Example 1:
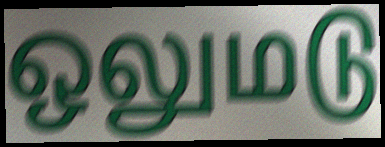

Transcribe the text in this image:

ஒலுமடு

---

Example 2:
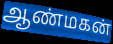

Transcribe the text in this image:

ஆண்மகன்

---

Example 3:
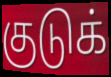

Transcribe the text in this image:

குடுக்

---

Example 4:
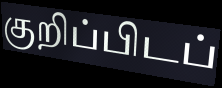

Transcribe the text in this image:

குறிப்பிடப்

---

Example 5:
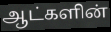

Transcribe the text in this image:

ஆட்களின்